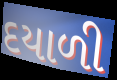
દયાળી